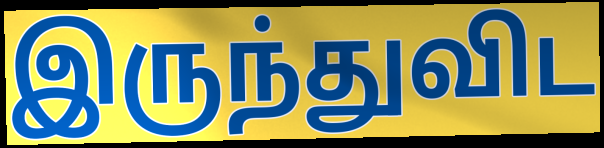
இருந்துவிட